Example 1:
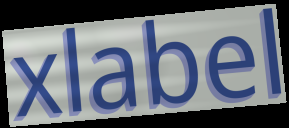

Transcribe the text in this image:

xlabel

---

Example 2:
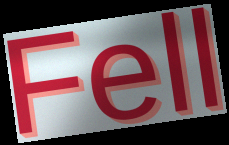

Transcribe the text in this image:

Fell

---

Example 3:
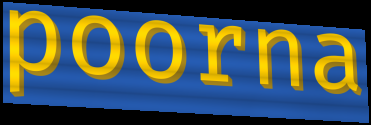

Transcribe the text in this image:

poorna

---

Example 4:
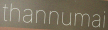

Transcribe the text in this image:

thannumai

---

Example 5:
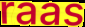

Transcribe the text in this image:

raas